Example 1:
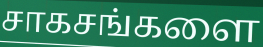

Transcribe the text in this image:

சாகசங்களை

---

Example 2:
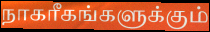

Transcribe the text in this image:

நாகரீகங்களுக்கும்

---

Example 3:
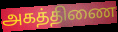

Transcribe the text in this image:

அகத்திணை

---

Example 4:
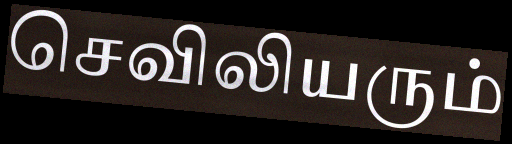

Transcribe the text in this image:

செவிலியரும்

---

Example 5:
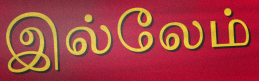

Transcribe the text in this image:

இல்லேம்